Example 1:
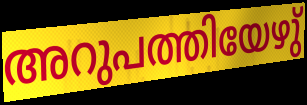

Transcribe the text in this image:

അറുപത്തിയേഴു്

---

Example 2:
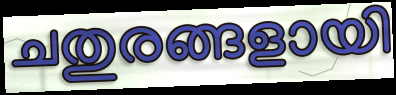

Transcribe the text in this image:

ചതുരങ്ങളായി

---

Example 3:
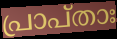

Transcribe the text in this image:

പ്രാപ്താഃ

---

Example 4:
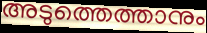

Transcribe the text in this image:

അടുത്തെത്താനും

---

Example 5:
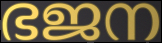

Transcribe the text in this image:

ഭജന